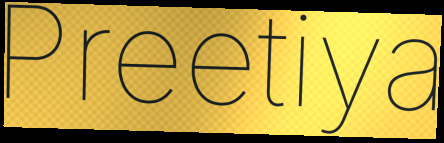
Preetiya